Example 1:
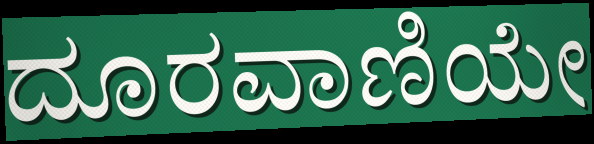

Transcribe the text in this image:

ದೂರವಾಣಿಯೇ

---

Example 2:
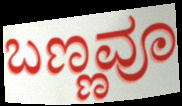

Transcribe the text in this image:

ಬಣ್ಣವೂ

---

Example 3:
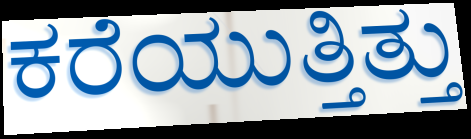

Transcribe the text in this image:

ಕರೆಯುತ್ತಿತ್ತು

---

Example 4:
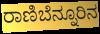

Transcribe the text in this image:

ರಾಣಿಬೆನ್ನೂರಿನ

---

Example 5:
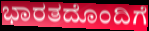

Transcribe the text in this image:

ಭಾರತದೊಂದಿಗೆ